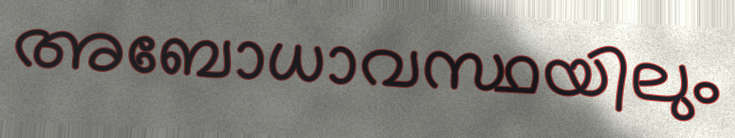
അബോധാവസ്ഥയിലും